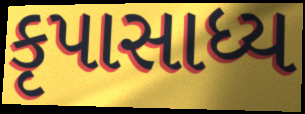
કૃપાસાધ્ય